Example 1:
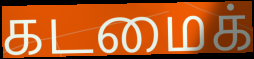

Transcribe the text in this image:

கடமைக்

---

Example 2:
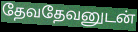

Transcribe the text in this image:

தேவதேவனுடன்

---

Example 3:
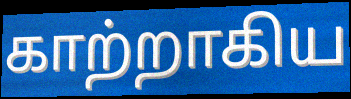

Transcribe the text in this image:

காற்றாகிய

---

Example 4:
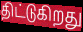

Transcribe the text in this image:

திட்டுகிறது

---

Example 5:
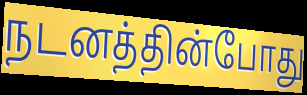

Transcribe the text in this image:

நடனத்தின்போது